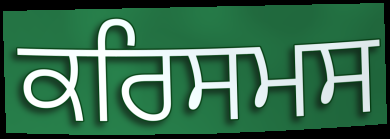
ਕਰਿਸਮਸ